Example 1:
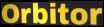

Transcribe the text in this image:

Orbitor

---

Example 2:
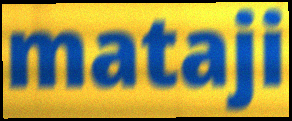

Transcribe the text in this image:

mataji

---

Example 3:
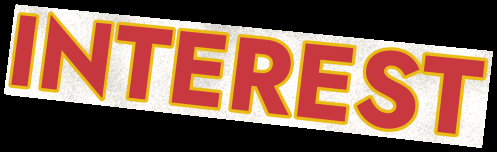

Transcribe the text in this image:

INTEREST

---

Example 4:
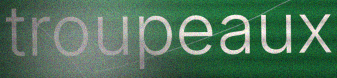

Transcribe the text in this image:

troupeaux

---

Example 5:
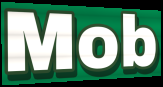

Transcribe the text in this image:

Mob